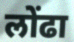
लोंढा